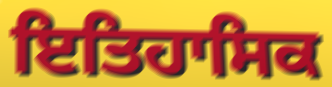
ਇਤਿਹਾਸਿਕ